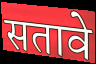
सतावे